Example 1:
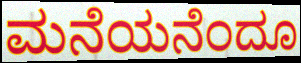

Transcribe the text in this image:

ಮನೆಯನೆಂದೂ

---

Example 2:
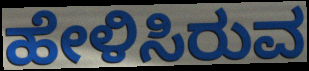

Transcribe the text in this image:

ಹೇಳಿಸಿರುವ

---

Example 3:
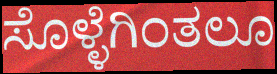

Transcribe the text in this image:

ಸೊಳ್ಳೆಗಿಂತಲೂ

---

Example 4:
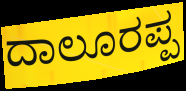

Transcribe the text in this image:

ದಾಲೂರಪ್ಪ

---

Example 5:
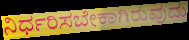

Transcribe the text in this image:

ನಿರ್ಧರಿಸಬೇಕಾಗಿರುವುದು